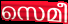
സെമീ